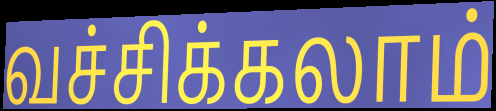
வச்சிக்கலாம்